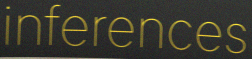
inferences